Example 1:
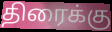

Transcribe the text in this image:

திரைக்கு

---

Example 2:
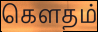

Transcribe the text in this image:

கௌதம்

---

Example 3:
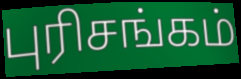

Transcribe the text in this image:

புரிசங்கம்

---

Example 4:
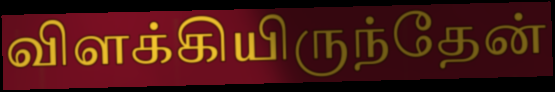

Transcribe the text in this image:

விளக்கியிருந்தேன்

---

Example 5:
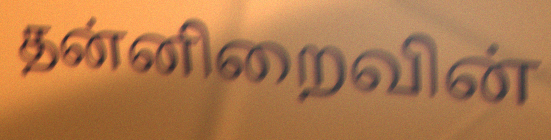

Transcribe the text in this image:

தன்னிறைவின்